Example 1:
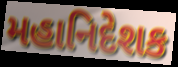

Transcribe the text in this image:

મહાનિદેશક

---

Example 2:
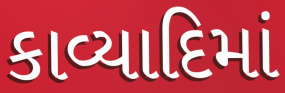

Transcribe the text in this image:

કાવ્યાદિમાં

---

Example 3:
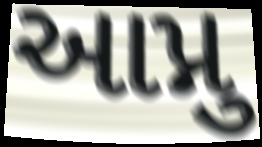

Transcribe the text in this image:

આપ્નુ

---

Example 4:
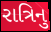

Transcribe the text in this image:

રાત્રિનુ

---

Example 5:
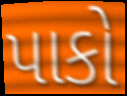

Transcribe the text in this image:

પાકો